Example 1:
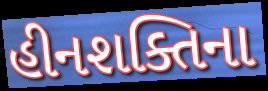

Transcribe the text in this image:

હીનશક્તિના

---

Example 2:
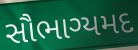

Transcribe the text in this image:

સૌભાગ્યમદ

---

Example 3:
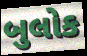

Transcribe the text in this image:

બુલોક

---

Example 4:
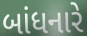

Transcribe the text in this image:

બાંધનારે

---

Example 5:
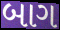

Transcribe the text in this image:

બાગ